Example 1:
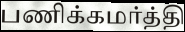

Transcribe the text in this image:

பணிக்கமர்த்தி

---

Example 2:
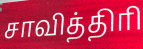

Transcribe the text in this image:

சாவித்திரி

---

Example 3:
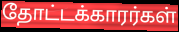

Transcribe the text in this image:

தோட்டக்காரர்கள்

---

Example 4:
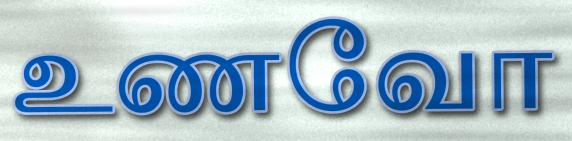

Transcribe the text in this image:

உணவோ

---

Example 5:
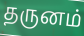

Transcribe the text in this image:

தருனம்